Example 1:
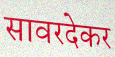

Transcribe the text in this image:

सावरदेकर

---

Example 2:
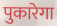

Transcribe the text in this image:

पुकारेगा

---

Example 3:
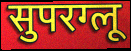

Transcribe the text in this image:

सुपरग्लू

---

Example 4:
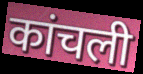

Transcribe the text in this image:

कांचली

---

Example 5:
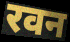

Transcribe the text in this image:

रवन